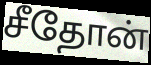
சீதோன்